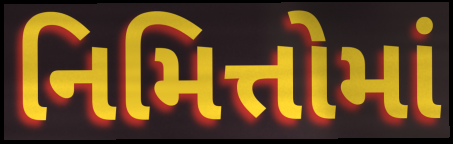
નિમિત્તોમાં